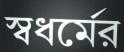
স্বধর্মের